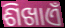
ଶିଖାଏଁ